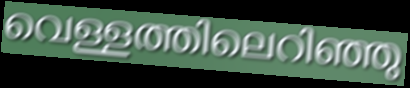
വെള്ളത്തിലെറിഞ്ഞു